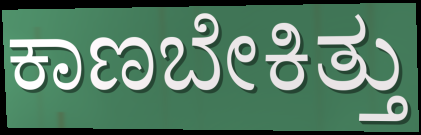
ಕಾಣಬೇಕಿತ್ತು